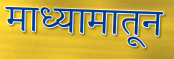
माध्यामातून